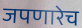
जपणारेच